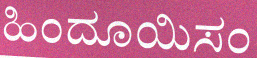
ಹಿಂದೂಯಿಸಂ